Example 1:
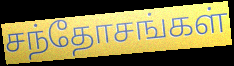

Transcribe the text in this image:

சந்தோசங்கள்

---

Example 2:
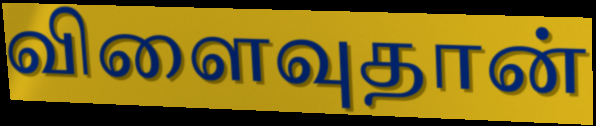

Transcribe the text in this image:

விளைவுதான்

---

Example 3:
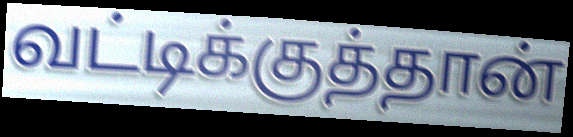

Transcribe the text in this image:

வட்டிக்குத்தான்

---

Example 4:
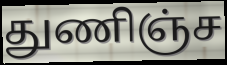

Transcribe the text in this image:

துணிஞ்ச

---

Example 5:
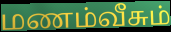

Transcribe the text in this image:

மணம்வீசும்